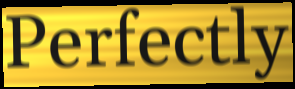
Perfectly